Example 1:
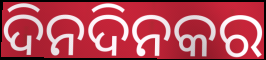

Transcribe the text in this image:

ଦିନଦିନକର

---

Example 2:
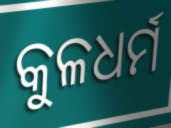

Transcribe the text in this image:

କୁଳଧର୍ମ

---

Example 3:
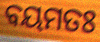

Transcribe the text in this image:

ବୟମତଃ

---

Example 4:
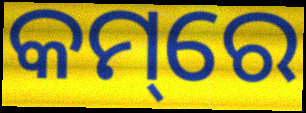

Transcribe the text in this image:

କମ୍‌ରେ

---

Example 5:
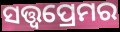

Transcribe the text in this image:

ସତ୍ତ୍ୱପ୍ରେମର